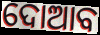
ଦୋଆବ